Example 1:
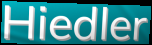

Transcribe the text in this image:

Hiedler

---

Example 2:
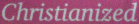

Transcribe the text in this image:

Christianized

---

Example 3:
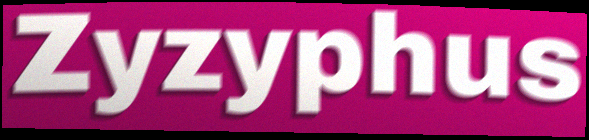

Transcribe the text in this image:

Zyzyphus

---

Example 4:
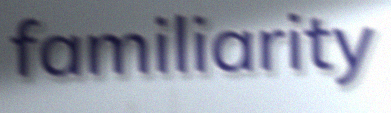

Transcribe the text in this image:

familiarity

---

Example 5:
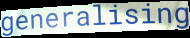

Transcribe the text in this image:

generalising